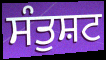
ਸੰਤੁਸ਼ਟ